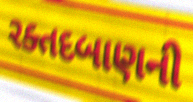
રક્તદબાણની